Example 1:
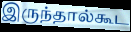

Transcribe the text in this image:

இருந்தால்கூட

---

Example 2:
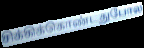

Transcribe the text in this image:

சிக்கிக்கொண்டதுபோல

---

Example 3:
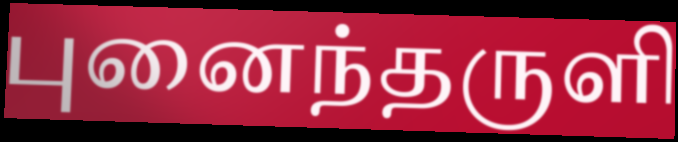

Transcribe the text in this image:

புனைந்தருளி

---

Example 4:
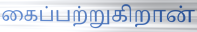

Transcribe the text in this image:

கைப்பற்றுகிறான்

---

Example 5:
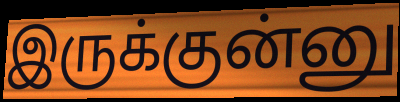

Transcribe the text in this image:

இருக்குன்னு